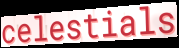
celestials